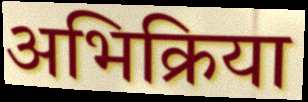
अभिक्रिया